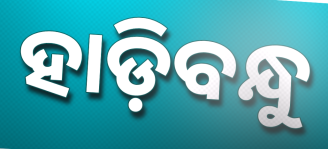
ହାଡ଼ିବନ୍ଧୁ